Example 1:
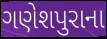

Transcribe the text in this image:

ગણેશપુરાના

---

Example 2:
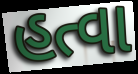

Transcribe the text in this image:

હત્વા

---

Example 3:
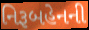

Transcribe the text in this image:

નિરૂબહેનની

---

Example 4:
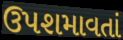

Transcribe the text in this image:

ઉપશમાવતાં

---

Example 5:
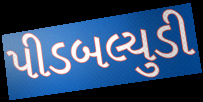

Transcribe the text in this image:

પીડબલ્યુડી